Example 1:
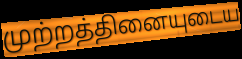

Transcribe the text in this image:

முற்றத்தினையுடைய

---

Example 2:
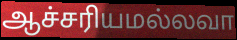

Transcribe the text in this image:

ஆச்சரியமல்லவா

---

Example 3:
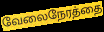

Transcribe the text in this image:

வேலைநேரத்தை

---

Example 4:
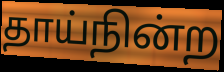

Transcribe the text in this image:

தாய்நின்ற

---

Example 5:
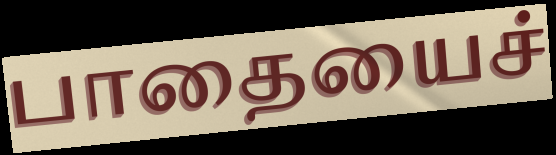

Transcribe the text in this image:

பாதையைச்